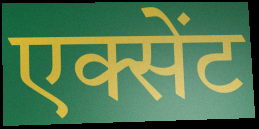
एक्सेंट